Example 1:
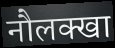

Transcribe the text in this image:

नौलक्खा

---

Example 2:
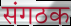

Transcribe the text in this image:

संगठक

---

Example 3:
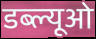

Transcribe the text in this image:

डब्ल्यूओ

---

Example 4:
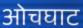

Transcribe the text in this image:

ओचघाट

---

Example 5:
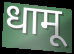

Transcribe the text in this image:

धामू